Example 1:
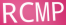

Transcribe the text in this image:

RCMP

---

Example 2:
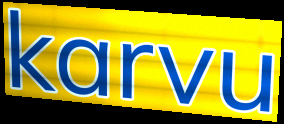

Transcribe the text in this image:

karvu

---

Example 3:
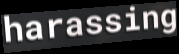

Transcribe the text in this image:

harassing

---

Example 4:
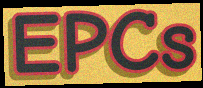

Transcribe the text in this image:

EPCs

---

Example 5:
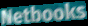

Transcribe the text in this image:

Netbooks